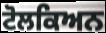
ਟੋਲਕਿਅਨ